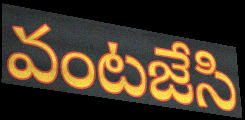
వంటజేసి